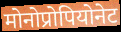
मोनोप्रोपियोनेट